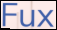
Fux